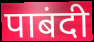
पाबंदी